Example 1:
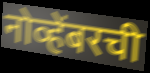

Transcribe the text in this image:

नोव्हेंबरची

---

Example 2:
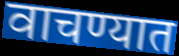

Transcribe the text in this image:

वाचण्यात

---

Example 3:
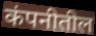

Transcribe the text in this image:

कंपनीतील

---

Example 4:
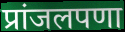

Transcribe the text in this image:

प्रांजलपणा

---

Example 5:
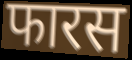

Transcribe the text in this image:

फारस